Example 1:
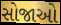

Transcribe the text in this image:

સોજાઓ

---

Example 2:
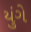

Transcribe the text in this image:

યુંગે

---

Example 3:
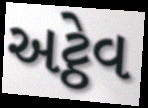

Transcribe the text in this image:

અટ્ઠેવ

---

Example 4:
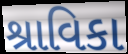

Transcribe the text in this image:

શ્રાવિકા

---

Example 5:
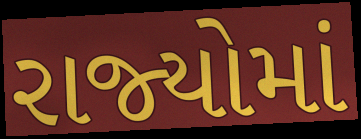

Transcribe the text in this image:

રાજ્‍યોમાં